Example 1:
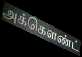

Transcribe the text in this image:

அக்கெளண்ட்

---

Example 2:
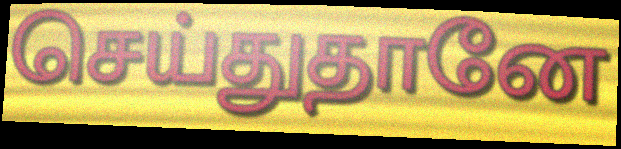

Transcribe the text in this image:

செய்துதானே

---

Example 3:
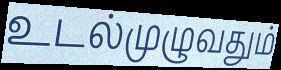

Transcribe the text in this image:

உடல்முழுவதும்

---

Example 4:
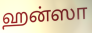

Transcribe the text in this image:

ஹன்ஸா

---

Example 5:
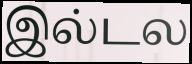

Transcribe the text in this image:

இல்டல